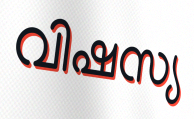
വിഷസ്യ